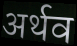
अर्थव